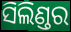
ସିଲିଣ୍ଡର